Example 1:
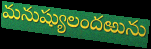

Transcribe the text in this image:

మనుష్యులందఱును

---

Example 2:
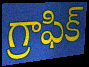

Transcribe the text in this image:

గ్రాఫిక్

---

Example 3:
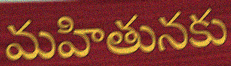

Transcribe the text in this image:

మహితునకు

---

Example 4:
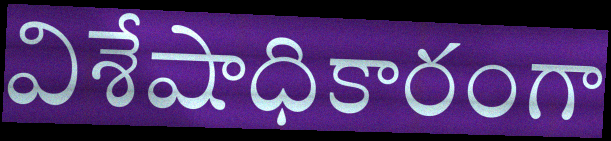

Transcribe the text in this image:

విశేషాధికారంగా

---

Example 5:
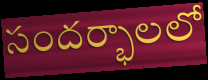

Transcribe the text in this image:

సందర్భాలలో